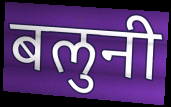
बलुनी